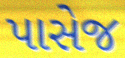
પાસેજ